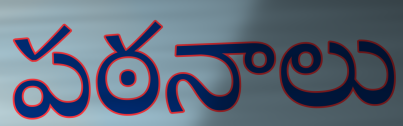
పఠనాలు